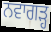
ਨਵਾਗੜ੍ਹ